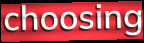
choosing